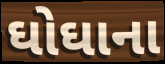
ઘોઘાના